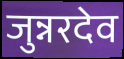
जुन्नरदेव